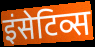
इंसेटिव्स